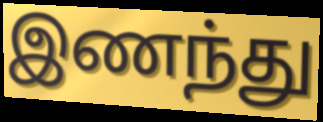
இணந்து